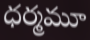
ధర్మమూ